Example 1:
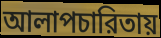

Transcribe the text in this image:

আলাপচারিতায়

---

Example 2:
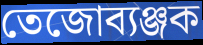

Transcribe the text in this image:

তেজোব্যঞ্জক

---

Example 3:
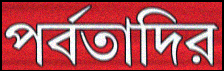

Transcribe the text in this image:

পর্বতাদির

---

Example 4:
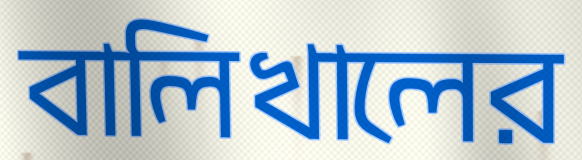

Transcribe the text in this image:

বালিখালের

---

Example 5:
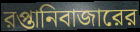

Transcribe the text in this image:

রপ্তানিবাজারের